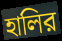
হালির